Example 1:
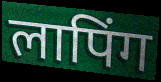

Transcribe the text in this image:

लापिंग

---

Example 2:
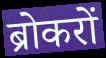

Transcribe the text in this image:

ब्रोकरों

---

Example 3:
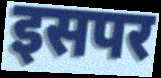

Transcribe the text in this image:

इसपर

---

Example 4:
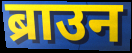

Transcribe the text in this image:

ब्राउन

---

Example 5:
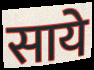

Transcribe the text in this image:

साये